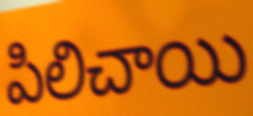
పిలిచాయి